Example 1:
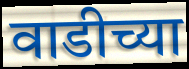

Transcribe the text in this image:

वाडीच्या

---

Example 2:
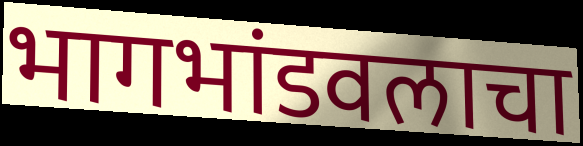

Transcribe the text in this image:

भागभांडवलाचा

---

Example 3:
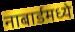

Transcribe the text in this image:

नाबार्डमध्ये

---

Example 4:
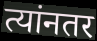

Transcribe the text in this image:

त्यांनतर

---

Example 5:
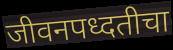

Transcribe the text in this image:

जीवनपध्दतीचा